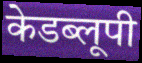
केडब्लूपी